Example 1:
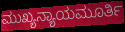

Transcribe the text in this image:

ಮುಖ್ಯನ್ಯಾಯಮೂರ್ತಿ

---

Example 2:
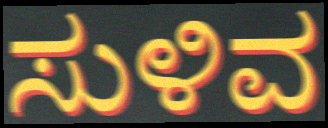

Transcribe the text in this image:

ಸುಳಿವ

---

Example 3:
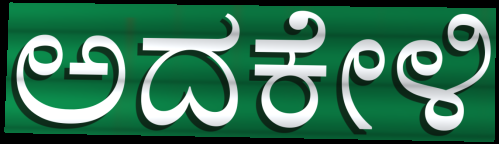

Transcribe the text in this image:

ಅದಕೇಳಿ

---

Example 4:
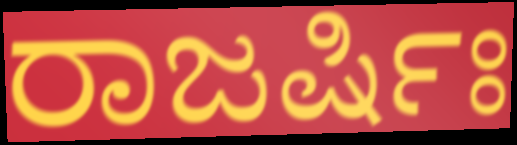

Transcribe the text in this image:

ರಾಜರ್ಷಿಃ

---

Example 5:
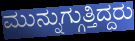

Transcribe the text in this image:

ಮುನ್ನುಗ್ಗುತ್ತಿದ್ದರು